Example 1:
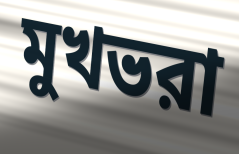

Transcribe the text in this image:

মুখভরা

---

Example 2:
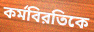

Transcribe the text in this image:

কর্মবিরতিকে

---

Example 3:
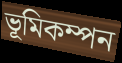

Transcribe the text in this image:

ভূমিকম্পন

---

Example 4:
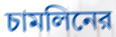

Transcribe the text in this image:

চামলিনের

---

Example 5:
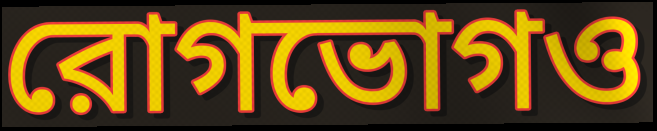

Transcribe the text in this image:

রোগভোগও